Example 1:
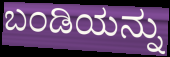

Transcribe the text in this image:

ಬಂಡಿಯನ್ನು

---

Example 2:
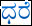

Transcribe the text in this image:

ಧರೆ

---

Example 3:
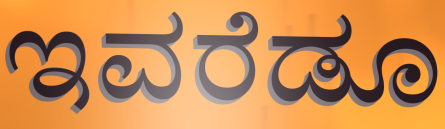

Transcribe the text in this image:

ಇವರೆಡೂ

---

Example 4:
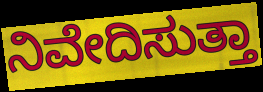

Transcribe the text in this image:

ನಿವೇದಿಸುತ್ತಾ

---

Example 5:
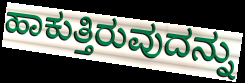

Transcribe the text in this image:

ಹಾಕುತ್ತಿರುವುದನ್ನು